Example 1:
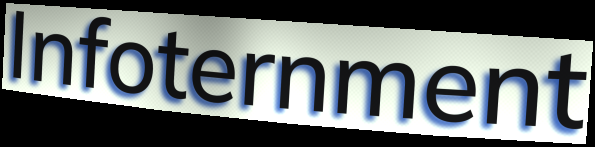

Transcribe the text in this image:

Infoternment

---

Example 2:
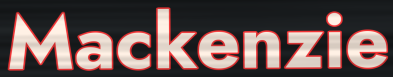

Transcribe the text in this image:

Mackenzie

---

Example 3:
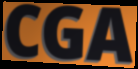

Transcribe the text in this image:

CGA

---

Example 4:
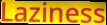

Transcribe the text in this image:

Laziness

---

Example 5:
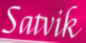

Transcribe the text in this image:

Satvik